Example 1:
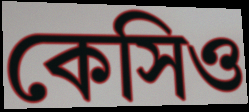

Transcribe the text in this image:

কেসিও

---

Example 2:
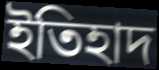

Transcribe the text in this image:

ইতিহাদ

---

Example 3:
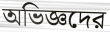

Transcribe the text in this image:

অভিজ্ঞদের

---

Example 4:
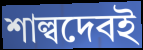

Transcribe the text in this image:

শাল্বদেবই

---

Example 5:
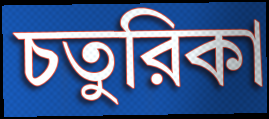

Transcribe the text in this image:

চতুরিকা